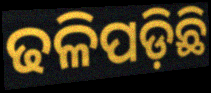
ଢଳିପଡ଼ିଛି